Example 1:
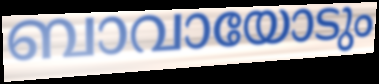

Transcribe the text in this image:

ബാവായോടും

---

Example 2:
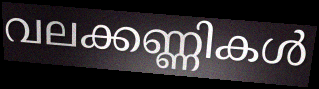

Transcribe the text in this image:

വലക്കണ്ണികൾ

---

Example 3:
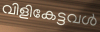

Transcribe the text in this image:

വിളികേട്ടവൾ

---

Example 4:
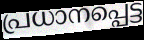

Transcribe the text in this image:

പ്രധാനപ്പെട്ട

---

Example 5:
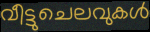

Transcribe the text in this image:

വീട്ടുചെലവുകൾ